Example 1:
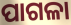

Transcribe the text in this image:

ପାଗଳା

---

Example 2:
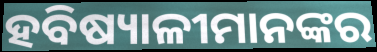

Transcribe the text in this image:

ହବିଷ୍ୟାଳୀମାନଙ୍କର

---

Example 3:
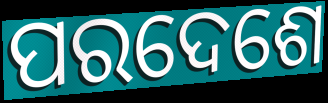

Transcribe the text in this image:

ପରଦେଶେ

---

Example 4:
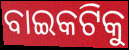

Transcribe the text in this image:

ବାଇକଟିକୁ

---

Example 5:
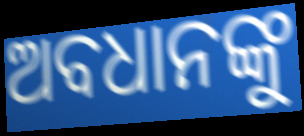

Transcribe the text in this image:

ଅବଧାନଙ୍କୁ